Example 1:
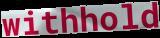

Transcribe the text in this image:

withhold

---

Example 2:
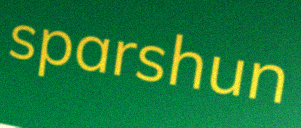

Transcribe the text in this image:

sparshun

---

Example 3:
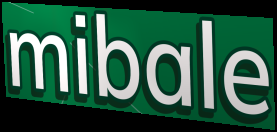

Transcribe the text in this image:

mibale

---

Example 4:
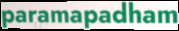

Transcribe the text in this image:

paramapadham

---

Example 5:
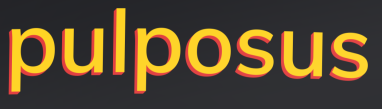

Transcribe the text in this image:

pulposus